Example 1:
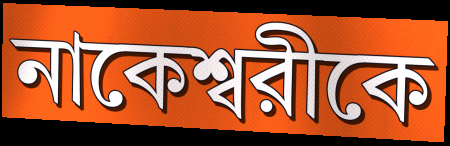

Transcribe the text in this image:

নাকেশ্বরীকে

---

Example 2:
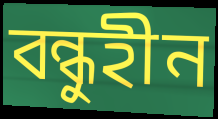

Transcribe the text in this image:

বন্ধুহীন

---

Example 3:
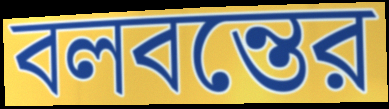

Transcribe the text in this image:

বলবন্তের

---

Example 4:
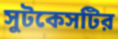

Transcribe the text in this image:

সুটকেসটির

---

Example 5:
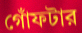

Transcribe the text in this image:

গোঁফটার